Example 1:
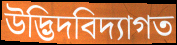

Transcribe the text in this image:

উদ্ভিদবিদ্যাগত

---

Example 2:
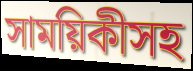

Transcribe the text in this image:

সাময়িকীসহ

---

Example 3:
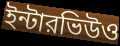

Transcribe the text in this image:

ইন্টারভিউও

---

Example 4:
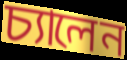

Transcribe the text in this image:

চ্যালেন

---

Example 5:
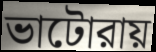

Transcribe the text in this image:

ভাটোরায়